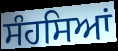
ਸੰਹਸਿਆਂ